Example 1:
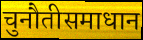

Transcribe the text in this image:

चुनौतीसमाधान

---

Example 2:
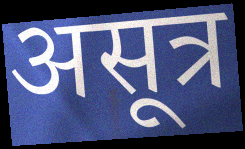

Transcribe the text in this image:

असूत्र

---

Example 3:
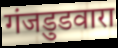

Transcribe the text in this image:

गंजडुडवारा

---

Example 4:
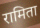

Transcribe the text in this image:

रामिता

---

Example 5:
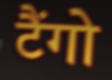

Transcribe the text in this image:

टैंगो